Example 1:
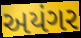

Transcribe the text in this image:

અયંગર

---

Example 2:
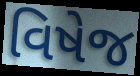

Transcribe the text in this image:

વિષેજ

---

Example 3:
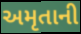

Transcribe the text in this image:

અમૃતાની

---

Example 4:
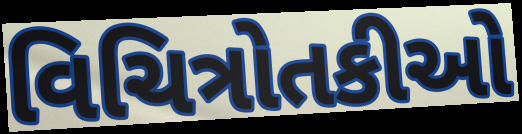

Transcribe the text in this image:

વિચિત્રોતકીઓ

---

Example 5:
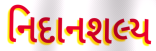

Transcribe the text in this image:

નિદાનશલ્ય